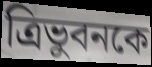
ত্রিভুবনকে